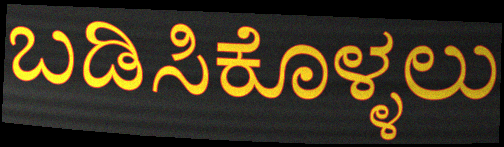
ಬಡಿಸಿಕೊಳ್ಳಲು